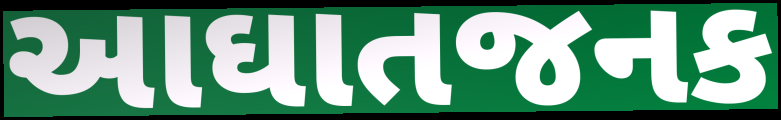
આઘાતજનક